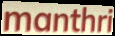
manthri